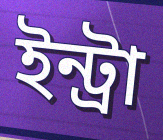
ইন্ট্রা